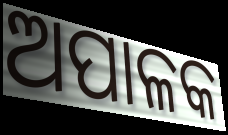
ଅପାଳକ